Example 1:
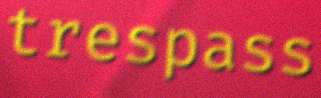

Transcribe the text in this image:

trespass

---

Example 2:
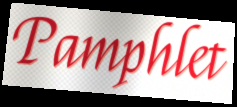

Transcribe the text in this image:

Pamphlet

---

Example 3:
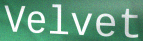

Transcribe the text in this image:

Velvet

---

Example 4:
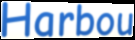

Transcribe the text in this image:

Harbou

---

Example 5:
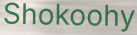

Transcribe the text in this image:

Shokoohy